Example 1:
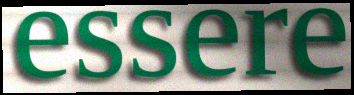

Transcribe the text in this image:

essere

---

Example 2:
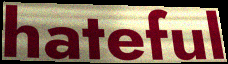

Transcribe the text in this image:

hateful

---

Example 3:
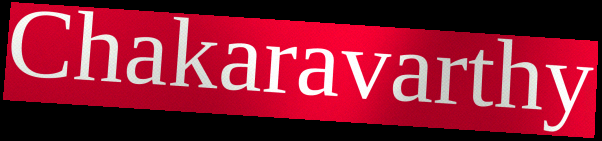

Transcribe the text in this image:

Chakaravarthy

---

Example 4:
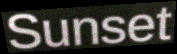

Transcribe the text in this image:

Sunset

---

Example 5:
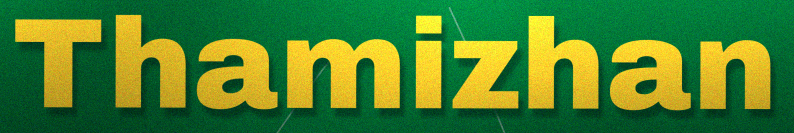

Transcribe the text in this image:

Thamizhan